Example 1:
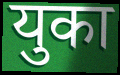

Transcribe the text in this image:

युका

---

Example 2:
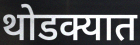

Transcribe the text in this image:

थोडक्यात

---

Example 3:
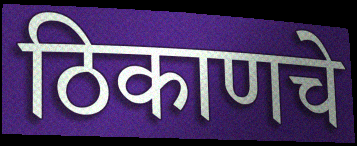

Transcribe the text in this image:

ठिकाणचे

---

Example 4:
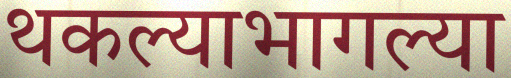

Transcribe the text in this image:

थकल्याभागल्या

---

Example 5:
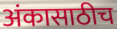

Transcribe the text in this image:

अंकासाठीच